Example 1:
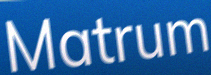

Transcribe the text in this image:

Matrum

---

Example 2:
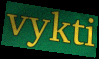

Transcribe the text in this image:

vykti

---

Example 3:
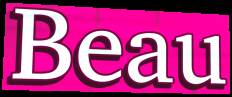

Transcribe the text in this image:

Beau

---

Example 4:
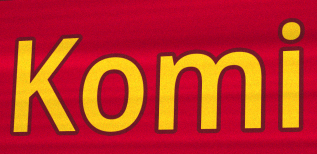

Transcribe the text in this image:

Komi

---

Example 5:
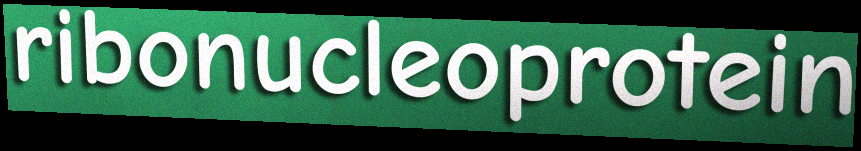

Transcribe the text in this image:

ribonucleoprotein